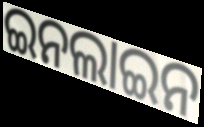
ଇନଲାଇନ